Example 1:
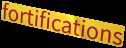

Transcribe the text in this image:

fortifications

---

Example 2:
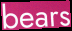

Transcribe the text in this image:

bears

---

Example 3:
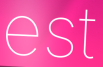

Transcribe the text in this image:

est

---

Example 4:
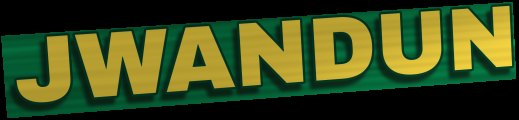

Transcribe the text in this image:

JWANDUN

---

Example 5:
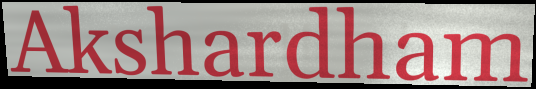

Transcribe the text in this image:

Akshardham